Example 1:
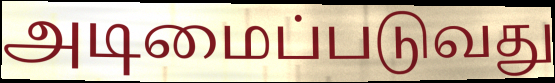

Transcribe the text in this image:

அடிமைப்படுவது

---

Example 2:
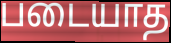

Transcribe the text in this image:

படையாத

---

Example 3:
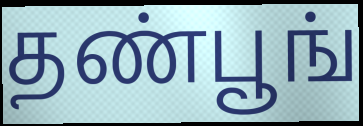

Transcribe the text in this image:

தண்பூங்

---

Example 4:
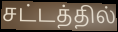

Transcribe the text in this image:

சட்டத்தில்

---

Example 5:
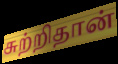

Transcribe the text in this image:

சுற்றிதான்